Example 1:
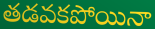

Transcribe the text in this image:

తడవకపోయినా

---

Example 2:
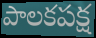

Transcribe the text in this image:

పాలకపక్ష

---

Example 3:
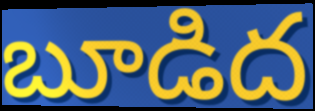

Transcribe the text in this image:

బూడిద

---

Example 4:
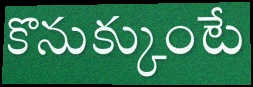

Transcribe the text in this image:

కొనుక్కుంటే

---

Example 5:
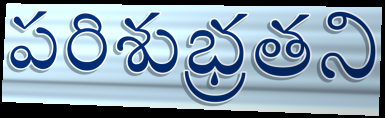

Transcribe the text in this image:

పరిశుభ్రతని